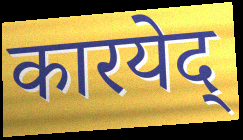
कारयेद्